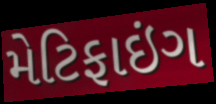
મેટિફાઇંગ